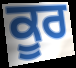
ਕੂਰ